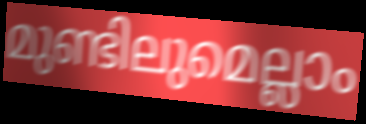
മുണ്ടിലുമെല്ലാം